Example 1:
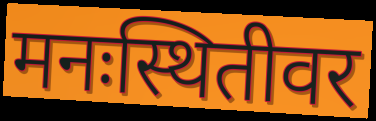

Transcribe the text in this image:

मनःस्थितीवर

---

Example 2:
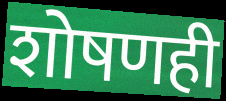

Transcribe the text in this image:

शोषणही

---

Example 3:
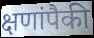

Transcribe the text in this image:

क्षणांपैकी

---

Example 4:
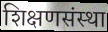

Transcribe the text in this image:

शिक्षणसंस्था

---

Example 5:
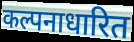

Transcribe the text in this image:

कल्पनाधारित